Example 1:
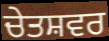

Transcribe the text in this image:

ਚੇਤਸ਼ਵਰ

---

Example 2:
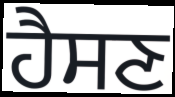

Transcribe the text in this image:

ਹੈਸਣ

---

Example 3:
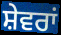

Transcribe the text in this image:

ਸ਼ੇਵਰਾਂ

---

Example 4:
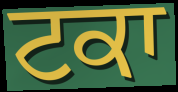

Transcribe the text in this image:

ਟਕਾ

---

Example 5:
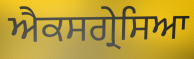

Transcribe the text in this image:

ਐਕਸਗ੍ਰੇਸਿਆ